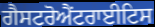
ਗੈਸਟਰੋਐਂਟਰਾਈਟਿਸ